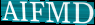
AIFMD